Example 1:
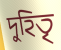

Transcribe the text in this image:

দুহিতৃ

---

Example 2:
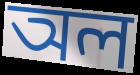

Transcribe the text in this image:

অল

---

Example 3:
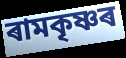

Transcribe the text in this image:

ৰামকৃষ্ণৰ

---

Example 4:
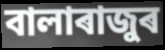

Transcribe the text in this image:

বালাৰাজুৰ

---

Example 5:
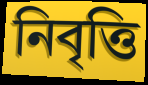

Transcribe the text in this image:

নিবৃত্তি